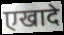
एखादे